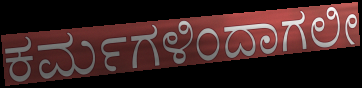
ಕರ್ಮಗಳಿಂದಾಗಲೀ